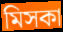
মিসকা